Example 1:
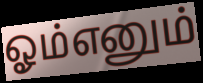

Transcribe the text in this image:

ஓம்எனும்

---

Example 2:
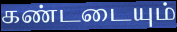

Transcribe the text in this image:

கண்டடையும்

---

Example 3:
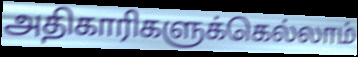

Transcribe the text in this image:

அதிகாரிகளுக்கெல்லாம்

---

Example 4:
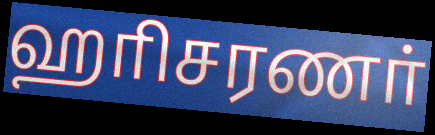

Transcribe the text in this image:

ஹரிசரணர்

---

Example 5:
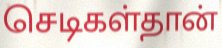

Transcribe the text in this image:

செடிகள்தான்